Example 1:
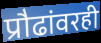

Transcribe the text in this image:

प्रौढांवरही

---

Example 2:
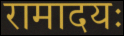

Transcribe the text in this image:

रामादयः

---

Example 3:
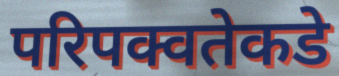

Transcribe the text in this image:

परिपक्वतेकडे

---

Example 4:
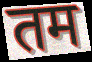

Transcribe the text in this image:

तम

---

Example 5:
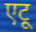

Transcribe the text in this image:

एटू